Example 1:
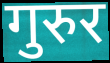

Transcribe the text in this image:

गुरुर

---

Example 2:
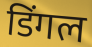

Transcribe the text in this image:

डिंगल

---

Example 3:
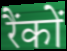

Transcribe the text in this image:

रैंकों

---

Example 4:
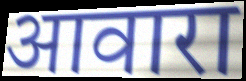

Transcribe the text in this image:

आवारा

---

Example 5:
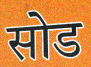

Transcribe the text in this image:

सोड